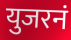
युजरनं